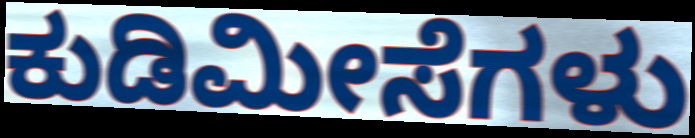
ಕುಡಿಮೀಸೆಗಳು